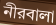
নীরবালা